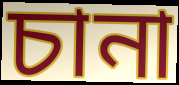
চানা